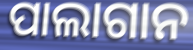
ପାଲାଗାନ